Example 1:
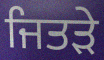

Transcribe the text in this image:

ਜਿਤੜੇ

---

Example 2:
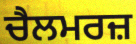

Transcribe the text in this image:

ਚੈਲਮਰਜ਼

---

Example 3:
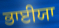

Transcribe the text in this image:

ਭਾਈਯਾ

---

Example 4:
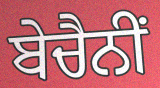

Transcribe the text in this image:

ਬੇਚੈਨੀਂ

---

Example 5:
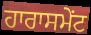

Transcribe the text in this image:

ਹਾਰਾਸਮੇਂਟ